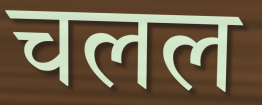
चलल